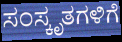
ಸಂಸ್ಕೃತಗಳಿಗೆ